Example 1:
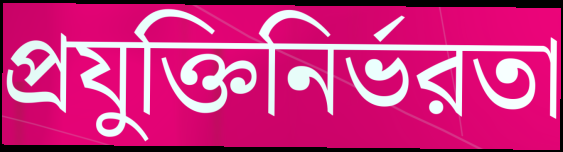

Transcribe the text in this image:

প্রযুক্তিনির্ভরতা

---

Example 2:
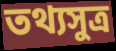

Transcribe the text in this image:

তথ্যসুত্র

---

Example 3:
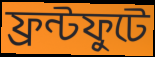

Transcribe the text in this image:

ফ্রন্টফুটে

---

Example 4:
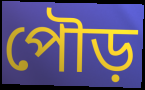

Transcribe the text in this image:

পৌড়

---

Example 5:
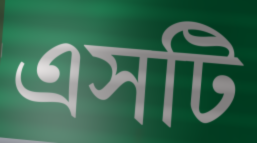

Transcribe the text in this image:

এসটি